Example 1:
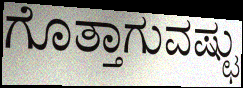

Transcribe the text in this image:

ಗೊತ್ತಾಗುವಷ್ಟು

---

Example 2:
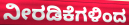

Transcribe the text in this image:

ನೀರಡಿಕೆಗಳಿಂದ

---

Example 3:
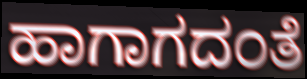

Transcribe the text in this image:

ಹಾಗಾಗದಂತೆ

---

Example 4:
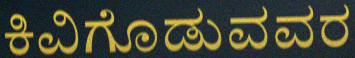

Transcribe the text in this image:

ಕಿವಿಗೊಡುವವರ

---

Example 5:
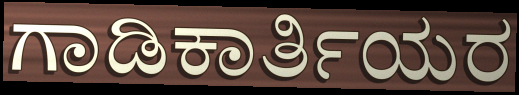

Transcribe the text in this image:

ಗಾಡಿಕಾರ್ತಿಯರ